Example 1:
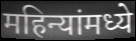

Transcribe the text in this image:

महिन्यांमध्ये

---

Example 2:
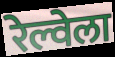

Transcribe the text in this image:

रेल्वेला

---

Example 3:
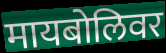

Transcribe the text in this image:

मायबोलिवर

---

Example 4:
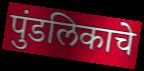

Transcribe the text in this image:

पुंडलिकाचे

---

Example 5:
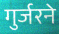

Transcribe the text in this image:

गुर्जरने